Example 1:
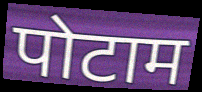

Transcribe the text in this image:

पोटाम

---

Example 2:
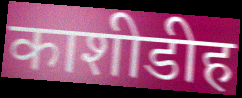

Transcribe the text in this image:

काशीडीह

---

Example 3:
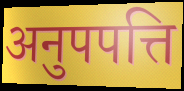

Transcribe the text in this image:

अनुपपत्ति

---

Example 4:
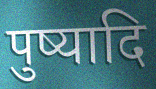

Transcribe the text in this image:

पुष्यादि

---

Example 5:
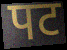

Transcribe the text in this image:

पट